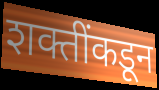
शक्तींकडून